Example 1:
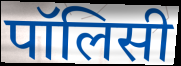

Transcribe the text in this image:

पॉलिसी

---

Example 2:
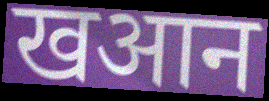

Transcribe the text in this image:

खआन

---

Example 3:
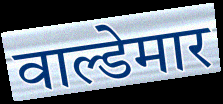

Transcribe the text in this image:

वाल्डेमार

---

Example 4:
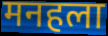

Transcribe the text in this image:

मनहला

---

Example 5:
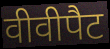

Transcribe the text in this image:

वीवीपैट